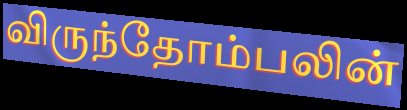
விருந்தோம்பலின்